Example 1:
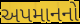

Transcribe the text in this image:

અપમાનનો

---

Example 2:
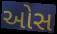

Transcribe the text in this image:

ઓસ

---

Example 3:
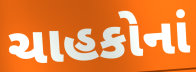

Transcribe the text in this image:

ચાહકોનાં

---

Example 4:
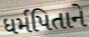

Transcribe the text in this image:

ધર્મપિતાને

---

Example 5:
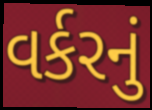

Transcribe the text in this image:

વર્કરનું